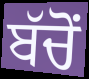
ਬੱਚੋਂ